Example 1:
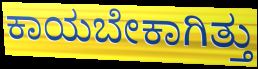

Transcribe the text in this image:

ಕಾಯಬೇಕಾಗಿತ್ತು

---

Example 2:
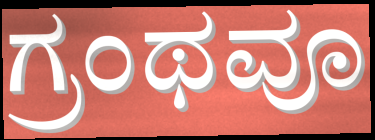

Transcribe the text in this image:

ಗ್ರಂಥವೂ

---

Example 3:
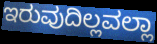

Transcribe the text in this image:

ಇರುವುದಿಲ್ಲವಲ್ಲಾ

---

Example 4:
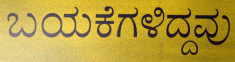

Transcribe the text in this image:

ಬಯಕೆಗಳಿದ್ದವು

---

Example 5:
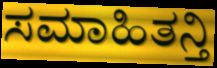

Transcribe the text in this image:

ಸಮಾಹಿತನ್ತಿ